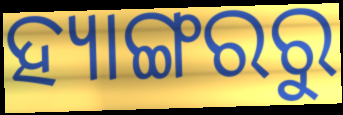
ହ୍ୟାଙ୍ଗରରୁ